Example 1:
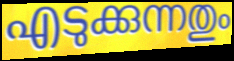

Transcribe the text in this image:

എടുക്കുന്നതും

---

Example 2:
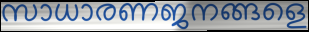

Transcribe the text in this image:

സാധാരണജനങ്ങളെ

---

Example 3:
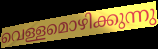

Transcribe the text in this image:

വെള്ളമൊഴിക്കുന്നു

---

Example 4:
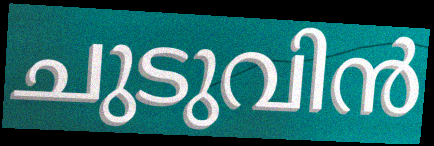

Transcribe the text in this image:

ചുടുവിൻ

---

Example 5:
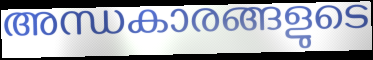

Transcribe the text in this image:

അന്ധകാരങ്ങളുടെ